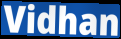
Vidhan